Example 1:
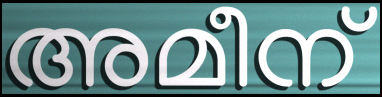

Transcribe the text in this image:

അമീന്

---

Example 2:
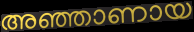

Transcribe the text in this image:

അഞ്ഞാണായ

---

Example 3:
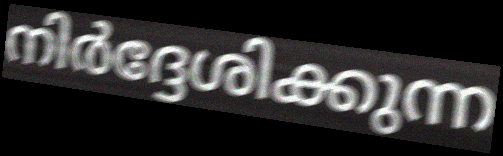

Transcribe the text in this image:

നിർദ്ദേശിക്കുന്ന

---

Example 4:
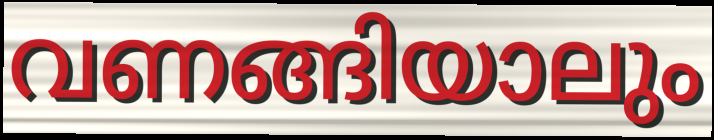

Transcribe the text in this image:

വണങ്ങിയാലും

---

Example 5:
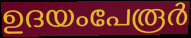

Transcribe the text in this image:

ഉദയംപേരൂർ